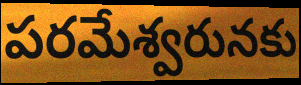
పరమేశ్వరునకు